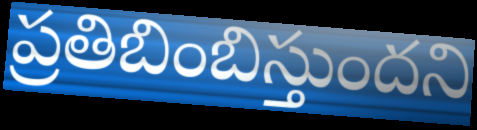
ప్రతిబింబిస్తుందని